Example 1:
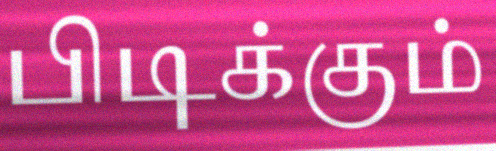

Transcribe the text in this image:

பிடிக்கும்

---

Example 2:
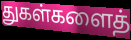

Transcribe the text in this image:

துகள்களைத்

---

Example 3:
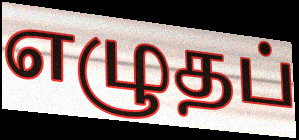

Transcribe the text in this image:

எழுதப்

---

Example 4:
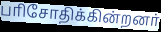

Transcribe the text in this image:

பரிசோதிக்கின்றனர்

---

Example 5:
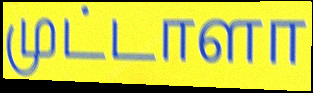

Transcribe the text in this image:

முட்டாளா